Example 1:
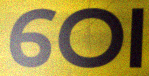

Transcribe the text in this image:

ଠୋ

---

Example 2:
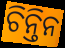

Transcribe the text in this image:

ଚିନ୍ତିନ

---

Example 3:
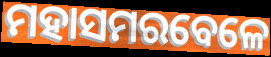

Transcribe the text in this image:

ମହାସମରବେଳେ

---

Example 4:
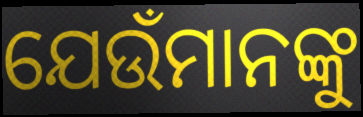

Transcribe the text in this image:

ଯେଉଁମାନଙ୍କୁ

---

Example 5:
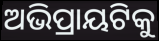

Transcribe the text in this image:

ଅଭିପ୍ରାୟଟିକୁ